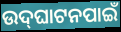
ଉଦ୍‌ଘାଟନପାଇଁ